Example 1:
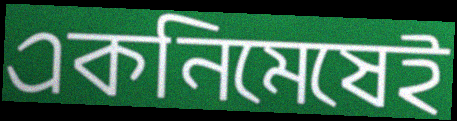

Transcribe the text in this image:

একনিমেষেই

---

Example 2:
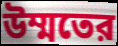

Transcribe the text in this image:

উম্মতের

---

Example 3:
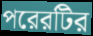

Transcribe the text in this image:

পরেরটির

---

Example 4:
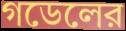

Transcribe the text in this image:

গডেলের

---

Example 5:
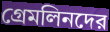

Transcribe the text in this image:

গ্রেমলিনদের